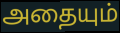
அதையும்